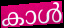
കാൾ